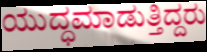
ಯುದ್ಧಮಾಡುತ್ತಿದ್ದರು